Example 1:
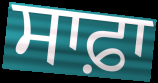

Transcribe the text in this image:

ਸਾਫ਼ਾ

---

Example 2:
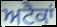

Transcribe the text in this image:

ਅਟੈਕਾਂ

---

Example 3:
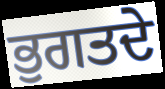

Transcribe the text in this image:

ਭੁਗਤਦੇ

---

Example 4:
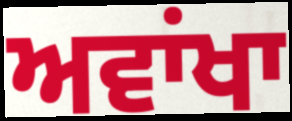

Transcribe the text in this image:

ਅਵਾਂਖਾ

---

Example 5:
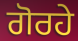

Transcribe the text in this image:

ਗੋਰਹੇ